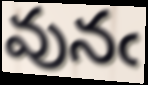
వునఁ